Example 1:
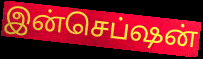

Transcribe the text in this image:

இன்செப்ஷன்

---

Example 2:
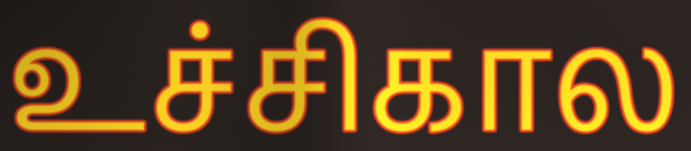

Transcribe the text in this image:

உச்சிகால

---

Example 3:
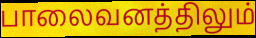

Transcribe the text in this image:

பாலைவனத்திலும்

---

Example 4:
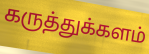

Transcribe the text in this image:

கருத்துக்களம்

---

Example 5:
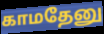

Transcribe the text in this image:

காமதேனு